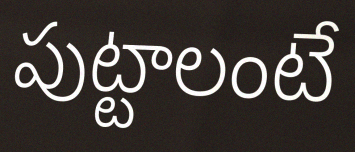
పుట్టాలంటే